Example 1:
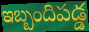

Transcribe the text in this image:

ఇబ్బందిపడ్డ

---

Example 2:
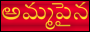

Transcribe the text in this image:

అమ్మపైన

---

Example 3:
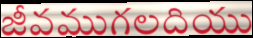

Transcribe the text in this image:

జీవముగలదియు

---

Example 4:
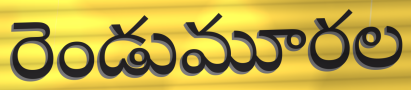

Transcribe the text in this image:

రెండుమూరల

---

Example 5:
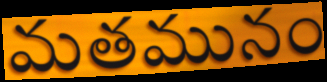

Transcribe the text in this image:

మతమునం